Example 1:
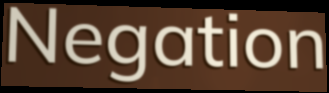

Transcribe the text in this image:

Negation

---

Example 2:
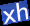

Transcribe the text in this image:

xh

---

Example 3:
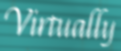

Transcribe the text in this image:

Virtually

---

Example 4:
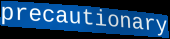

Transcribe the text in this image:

precautionary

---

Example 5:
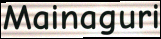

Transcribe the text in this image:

Mainaguri